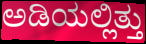
ಅಡಿಯಲ್ಲಿತ್ತು